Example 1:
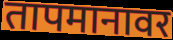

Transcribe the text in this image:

तापमानावर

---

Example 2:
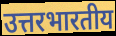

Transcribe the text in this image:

उत्तरभारतीय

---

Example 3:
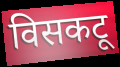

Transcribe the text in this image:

विसकटू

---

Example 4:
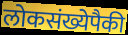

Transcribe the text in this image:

लोकसंख्येपैकी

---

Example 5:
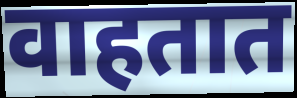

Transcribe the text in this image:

वाहतात